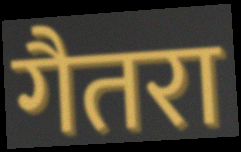
गैतरा